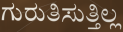
ಗುರುತಿಸುತ್ತಿಲ್ಲ